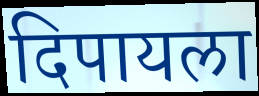
दिपायला